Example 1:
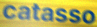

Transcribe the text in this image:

catasso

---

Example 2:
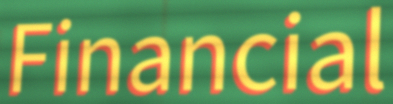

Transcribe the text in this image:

Financial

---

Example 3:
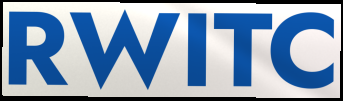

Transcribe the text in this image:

RWITC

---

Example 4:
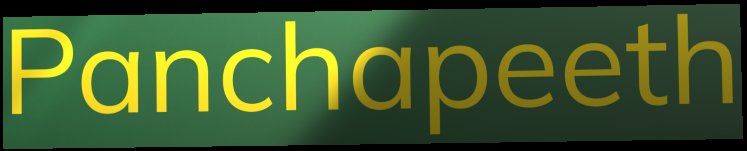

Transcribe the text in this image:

Panchapeeth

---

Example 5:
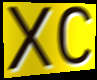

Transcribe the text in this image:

XC